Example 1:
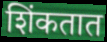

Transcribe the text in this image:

शिंकतात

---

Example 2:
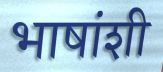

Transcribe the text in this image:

भाषांशी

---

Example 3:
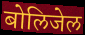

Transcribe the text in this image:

बोलिजेल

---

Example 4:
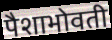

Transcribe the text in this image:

पैशाभोवती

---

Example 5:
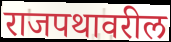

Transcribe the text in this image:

राजपथावरील